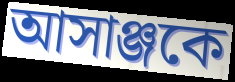
আসাঞ্জকে